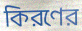
কিরণের